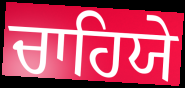
ਚਾਹਿਯੇ